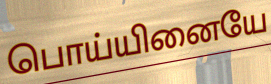
பொய்யினையே